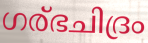
ഗര്ഭചിദ്രം